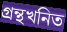
গ্ৰন্থখনিত